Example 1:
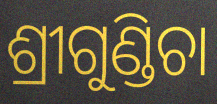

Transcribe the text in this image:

ଶ୍ରୀଗୁଣ୍ଡିଚା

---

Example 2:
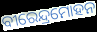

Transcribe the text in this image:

ବୀରେନ୍ଦ୍ରମୋହନ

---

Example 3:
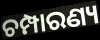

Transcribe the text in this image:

ଚମ୍ପାରଣ୍ୟ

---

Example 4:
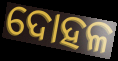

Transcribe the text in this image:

ଦୋହଳ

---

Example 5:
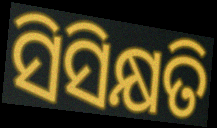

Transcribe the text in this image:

ସିସିକ୍ଷତି